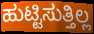
ಹುಟ್ಟಿಸುತ್ತಿಲ್ಲ